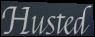
Husted